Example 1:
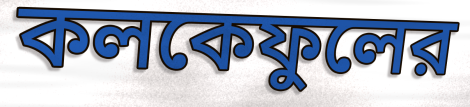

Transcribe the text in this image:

কলকেফুলের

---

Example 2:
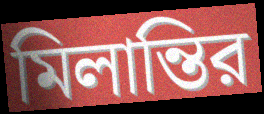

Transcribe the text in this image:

মিলান্তির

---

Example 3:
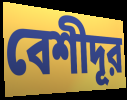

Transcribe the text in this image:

বেশীদূর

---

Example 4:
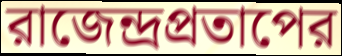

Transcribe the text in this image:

রাজেন্দ্রপ্রতাপের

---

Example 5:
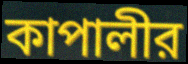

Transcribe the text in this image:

কাপালীর